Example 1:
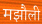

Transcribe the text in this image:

मझौली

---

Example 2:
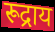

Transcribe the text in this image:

रूद्राय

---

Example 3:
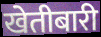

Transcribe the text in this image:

खेतीबारी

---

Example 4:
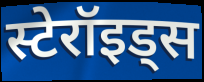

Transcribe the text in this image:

स्टेरॉइड्स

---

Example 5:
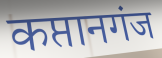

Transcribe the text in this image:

कप्तानगंज